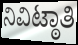
ನಿವಿಟ್ಠಾತಿ